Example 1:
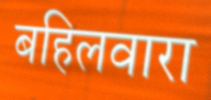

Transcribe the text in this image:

बहिलवारा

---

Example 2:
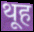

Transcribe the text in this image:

थूह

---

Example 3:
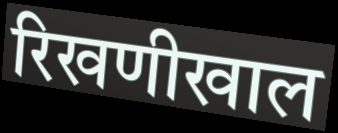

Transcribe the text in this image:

रिखणीखाल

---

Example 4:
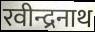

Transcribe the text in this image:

रवीन्‍द्रनाथ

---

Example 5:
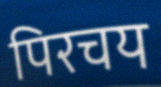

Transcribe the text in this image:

पिरचय